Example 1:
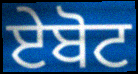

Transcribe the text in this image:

ਏਬੋਟ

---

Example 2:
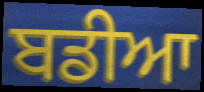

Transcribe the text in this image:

ਬਡੀਆ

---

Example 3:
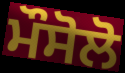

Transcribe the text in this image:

ਮੌਸੋਲੋ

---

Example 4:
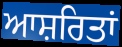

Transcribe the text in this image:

ਆਸ਼ਰਿਤਾਂ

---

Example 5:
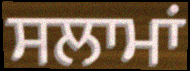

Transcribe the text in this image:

ਸਲਾਮਾਂ